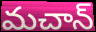
మచాన్